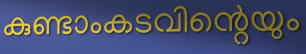
കുണ്ടാംകടവിന്റെയും